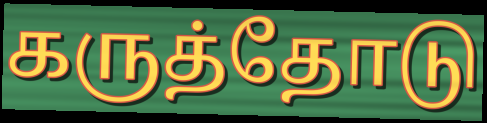
கருத்தோடு